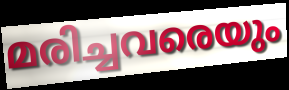
മരിച്ചവരെയും